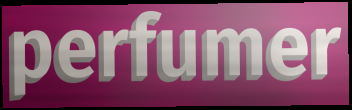
perfumer